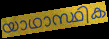
യാഥാസ്ഥിക